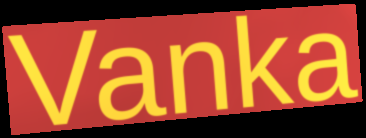
Vanka